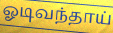
ஓடிவந்தாய்